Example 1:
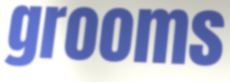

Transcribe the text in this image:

grooms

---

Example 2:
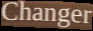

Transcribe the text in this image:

Changer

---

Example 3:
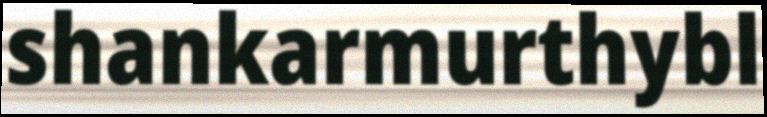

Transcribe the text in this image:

shankarmurthybl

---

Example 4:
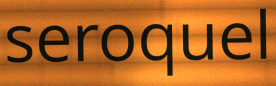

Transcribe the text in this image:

seroquel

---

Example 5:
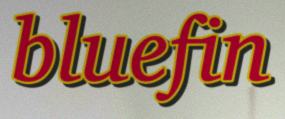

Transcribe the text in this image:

bluefin